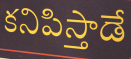
కనిపిస్తాడే